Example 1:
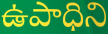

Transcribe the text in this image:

ఉపాధిని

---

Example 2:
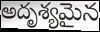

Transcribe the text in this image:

అదృశ్యమైన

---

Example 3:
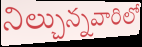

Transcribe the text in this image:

నిల్చున్నవారిలో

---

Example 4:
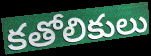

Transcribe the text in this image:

కతోలికులు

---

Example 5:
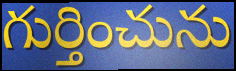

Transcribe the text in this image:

గుర్తించును